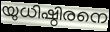
യുധിഷ്ഠിരനെ